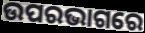
ଉପରଭାଗରେ